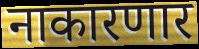
नाकारणार